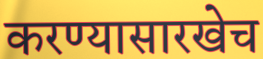
करण्यासारखेच